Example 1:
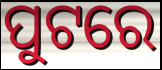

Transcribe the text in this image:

ପୁଟରେ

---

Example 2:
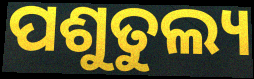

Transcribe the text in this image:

ପଶୁତୁଲ୍ୟ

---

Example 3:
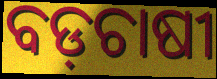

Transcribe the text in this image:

ବଡ଼ଚାଷୀ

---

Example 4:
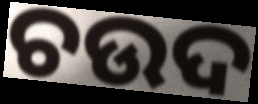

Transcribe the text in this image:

ଚଉଦ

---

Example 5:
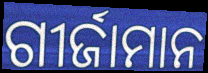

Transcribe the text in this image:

ଗୀର୍ଜାମାନ